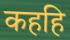
कहहि